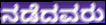
ನಡೆದವರು